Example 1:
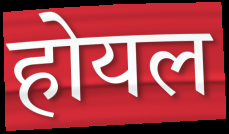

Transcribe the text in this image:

होयल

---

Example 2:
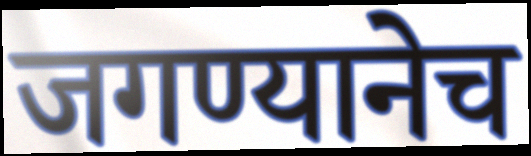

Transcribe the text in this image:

जगण्यानेच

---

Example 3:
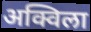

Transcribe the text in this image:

अक्विला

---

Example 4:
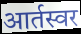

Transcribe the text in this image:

आर्तस्वर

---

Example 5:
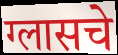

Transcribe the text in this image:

ग्लासचे